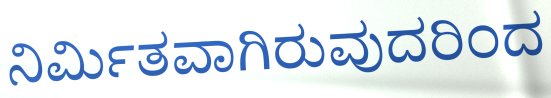
ನಿರ್ಮಿತವಾಗಿರುವುದರಿಂದ